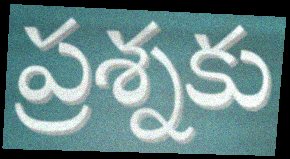
ప్రశ్నకు